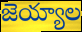
జెయ్యాల